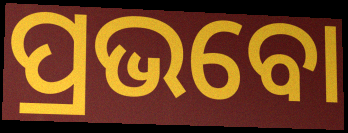
ପ୍ରଭବୋ